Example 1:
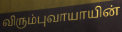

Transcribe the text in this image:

விரும்புவாயாயின்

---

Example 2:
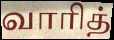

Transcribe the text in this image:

வாரித்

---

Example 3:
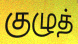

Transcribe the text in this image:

குழுத்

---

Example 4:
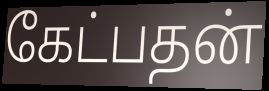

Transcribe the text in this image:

கேட்பதன்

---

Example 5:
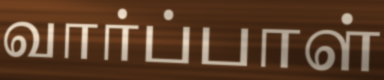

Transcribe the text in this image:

வார்ப்பாள்